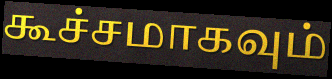
கூச்சமாகவும்